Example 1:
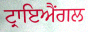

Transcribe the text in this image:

ਟ੍ਰਾਇਐਂਗਲ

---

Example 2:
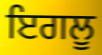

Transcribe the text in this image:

ਇਗਲੂ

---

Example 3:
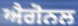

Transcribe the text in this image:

ਐਗੋਨਲ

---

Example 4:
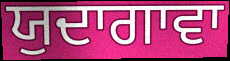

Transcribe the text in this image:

ਯੁਦਾਗਾਵਾ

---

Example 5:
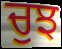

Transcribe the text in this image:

ਚੁਝ